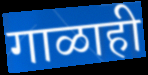
गाळाही